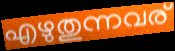
എഴുതുന്നവര്